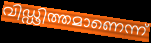
വിഡ്ഢിത്തമാണെന്ന്